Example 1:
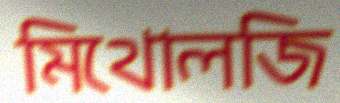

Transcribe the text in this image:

মিথোলজি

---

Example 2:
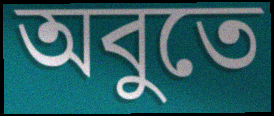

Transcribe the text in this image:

অবুতে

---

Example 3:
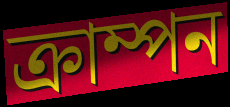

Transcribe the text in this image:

ক্রাম্পন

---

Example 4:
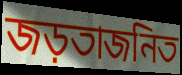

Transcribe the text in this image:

জড়তাজনিত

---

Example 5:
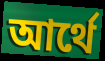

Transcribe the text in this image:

আর্থে